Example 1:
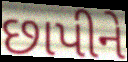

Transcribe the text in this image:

છાપીને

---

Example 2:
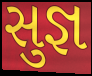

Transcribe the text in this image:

સુજ્ઞ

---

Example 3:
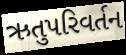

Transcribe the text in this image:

ઋતુપરિવર્તન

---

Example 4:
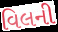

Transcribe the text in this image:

વિલની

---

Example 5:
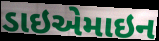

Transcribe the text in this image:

ડાઇએમાઇન